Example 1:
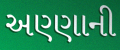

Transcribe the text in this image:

અણ્ણાની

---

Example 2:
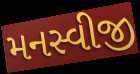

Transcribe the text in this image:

મનસ્વીજી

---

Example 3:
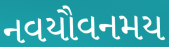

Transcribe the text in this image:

નવયૌવનમય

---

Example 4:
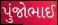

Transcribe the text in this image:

પુંજોભાઈ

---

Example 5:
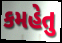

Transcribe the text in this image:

કમહેતુ